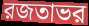
রজতাভর